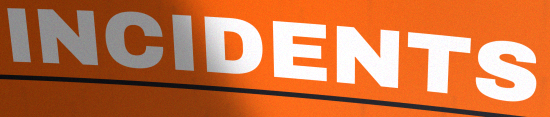
INCIDENTS